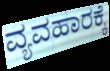
ವ್ಯವಹಾರಕ್ಕೆ